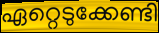
ഏറ്റെടുക്കേണ്ടി